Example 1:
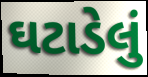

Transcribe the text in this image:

ઘટાડેલું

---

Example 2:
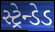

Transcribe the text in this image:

સ્ટ્રેન્ડેડ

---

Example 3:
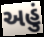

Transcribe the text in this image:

અહું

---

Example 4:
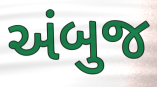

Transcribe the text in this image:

અંબુજ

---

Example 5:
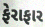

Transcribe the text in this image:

ફેરાફાર